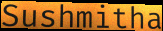
Sushmitha